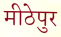
मीठेपुर